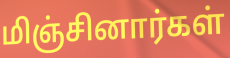
மிஞ்சினார்கள்